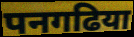
पनगढिया